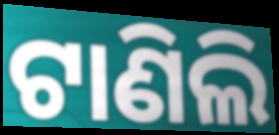
ଟାଣିଲି